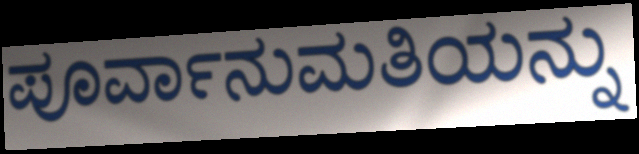
ಪೂರ್ವಾನುಮತಿಯನ್ನು